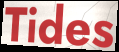
Tides